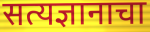
सत्यज्ञानाचा